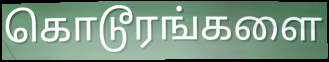
கொடூரங்களை